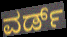
ವರ್ಡ್